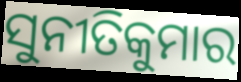
ସୁନୀତିକୁମାର